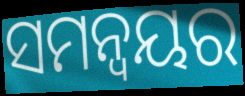
ସମନ୍ଵୟର